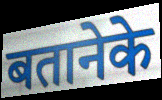
बतानेके